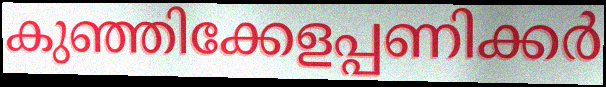
കുഞ്ഞിക്കേളപ്പണിക്കർ